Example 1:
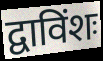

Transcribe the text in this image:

द्वाविंशः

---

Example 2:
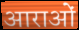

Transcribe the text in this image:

आराओं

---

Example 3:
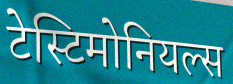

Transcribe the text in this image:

टेस्टिमोनियल्स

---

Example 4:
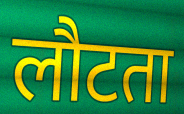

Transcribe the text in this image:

लौटता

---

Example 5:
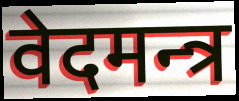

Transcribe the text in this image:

वेदमन्त्र